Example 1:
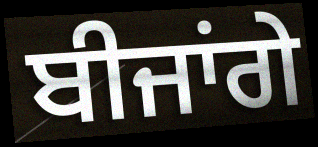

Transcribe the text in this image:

ਬੀਜਾਂਗੇ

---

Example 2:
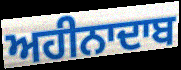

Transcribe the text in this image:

ਅਹੀਨਾਦਾਬ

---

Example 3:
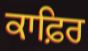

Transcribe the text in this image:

ਕਾਫ਼ਿਰ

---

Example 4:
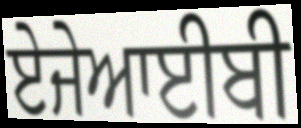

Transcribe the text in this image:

ਏਜੇਆਈਬੀ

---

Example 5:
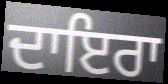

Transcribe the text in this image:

ਦਾਇਰਾ